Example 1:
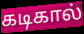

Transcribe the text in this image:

கடிகால்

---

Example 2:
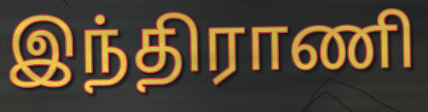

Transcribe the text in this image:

இந்திராணி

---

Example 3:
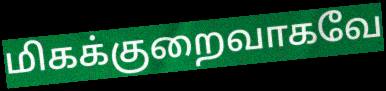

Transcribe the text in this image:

மிகக்குறைவாகவே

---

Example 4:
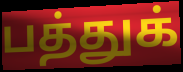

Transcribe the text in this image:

பத்துக்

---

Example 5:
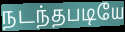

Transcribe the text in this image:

நடந்தபடியே